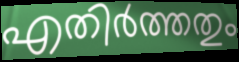
എതിർത്തതും